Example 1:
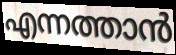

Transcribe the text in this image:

എന്നത്താൻ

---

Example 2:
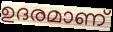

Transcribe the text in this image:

ഉദരമാണ്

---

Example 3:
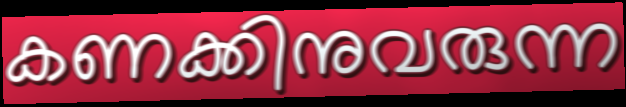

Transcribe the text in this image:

കണക്കിനുവരുന്ന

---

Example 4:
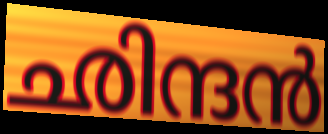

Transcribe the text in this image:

ഛിന്ദൻ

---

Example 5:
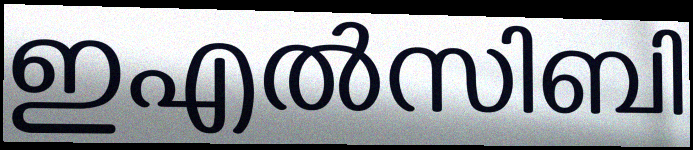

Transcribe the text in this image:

ഇഎൽസിബി